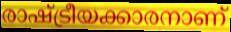
രാഷ്ട്രീയക്കാരനാണ്